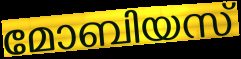
മോബിയസ്